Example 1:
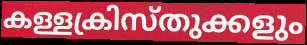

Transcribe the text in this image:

കള്ളക്രിസ്തുക്കളും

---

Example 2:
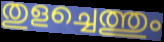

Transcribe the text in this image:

തുളച്ചെത്തും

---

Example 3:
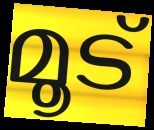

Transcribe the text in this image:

മൂട്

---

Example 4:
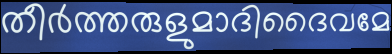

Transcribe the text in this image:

തീർത്തരുളുമാദിദൈവമേ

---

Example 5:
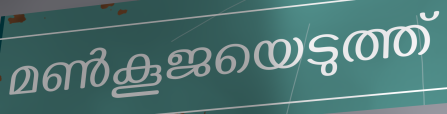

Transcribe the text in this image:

മൺകൂജയെടുത്ത്